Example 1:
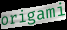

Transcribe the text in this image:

origami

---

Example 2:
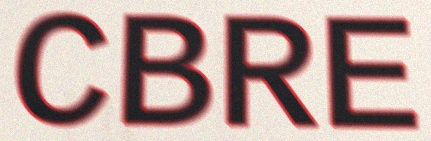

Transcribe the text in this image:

CBRE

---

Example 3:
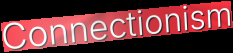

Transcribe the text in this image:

Connectionism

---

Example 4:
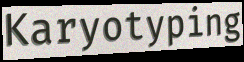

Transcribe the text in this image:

Karyotyping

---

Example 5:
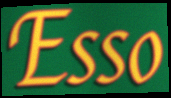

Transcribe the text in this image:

Esso